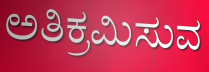
ಅತಿಕ್ರಮಿಸುವ